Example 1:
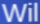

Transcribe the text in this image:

Wil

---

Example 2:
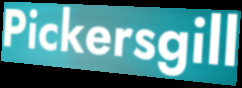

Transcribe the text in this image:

Pickersgill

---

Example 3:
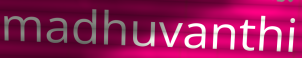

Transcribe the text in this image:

madhuvanthi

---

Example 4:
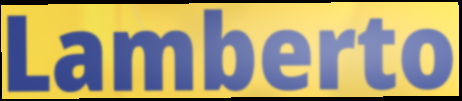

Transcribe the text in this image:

Lamberto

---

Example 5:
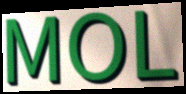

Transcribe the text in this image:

MOL